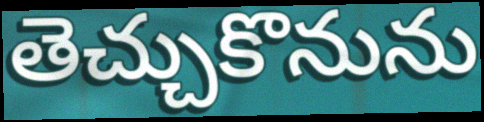
తెచ్చుకొనును